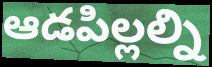
ఆడపిల్లల్ని